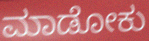
ಮಾಡೋಕು